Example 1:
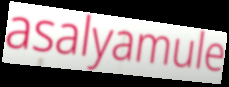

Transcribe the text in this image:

asalyamule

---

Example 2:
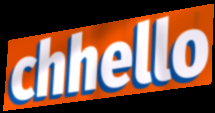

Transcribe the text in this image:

chhello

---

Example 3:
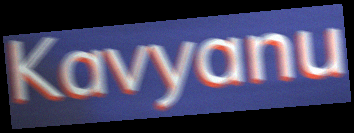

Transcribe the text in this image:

Kavyanu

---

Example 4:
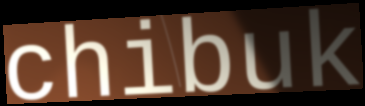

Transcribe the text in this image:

chibuk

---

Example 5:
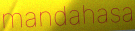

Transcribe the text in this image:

mandahasa